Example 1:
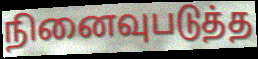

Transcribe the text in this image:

நினைவுபடுத்த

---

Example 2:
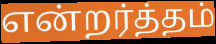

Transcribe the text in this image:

என்றர்த்தம்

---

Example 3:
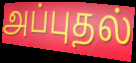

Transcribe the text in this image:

அப்புதல்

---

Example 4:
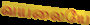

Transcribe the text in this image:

வயலையே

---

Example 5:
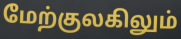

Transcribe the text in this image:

மேற்குலகிலும்